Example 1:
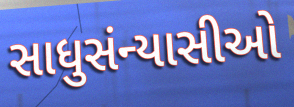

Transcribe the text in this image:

સાધુસંન્યાસીઓ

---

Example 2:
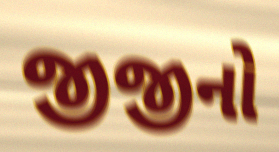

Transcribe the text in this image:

જીજીનો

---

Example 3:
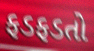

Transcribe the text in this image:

ફડફડતો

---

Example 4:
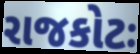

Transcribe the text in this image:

રાજકોટઃ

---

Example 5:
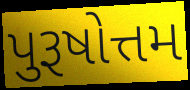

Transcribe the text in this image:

પુરૂષોત્તમ